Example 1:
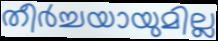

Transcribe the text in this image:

തീർച്ചയായുമില്ല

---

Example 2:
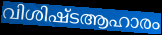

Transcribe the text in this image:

വിശിഷ്ടആഹാരം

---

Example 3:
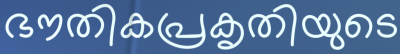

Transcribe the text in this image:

ഭൗതികപ്രകൃതിയുടെ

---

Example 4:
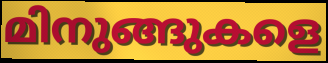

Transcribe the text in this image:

മിനുങ്ങുകളെ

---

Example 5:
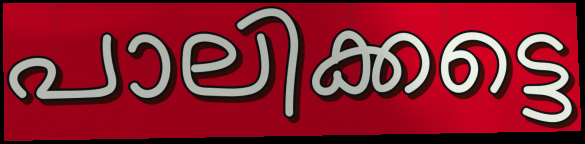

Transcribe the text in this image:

പാലിക്കട്ടെ